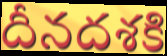
దీనదశకి